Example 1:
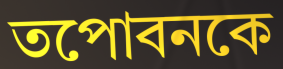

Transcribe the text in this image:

তপোবনকে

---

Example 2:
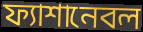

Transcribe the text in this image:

ফ্যাশানেবল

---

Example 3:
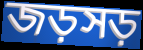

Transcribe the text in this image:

জড়সড়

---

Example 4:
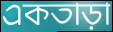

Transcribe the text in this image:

একতাড়া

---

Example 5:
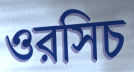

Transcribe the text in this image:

ওরসিচ